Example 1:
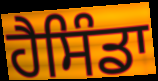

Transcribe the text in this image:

ਹੈਸਿੰਡਾ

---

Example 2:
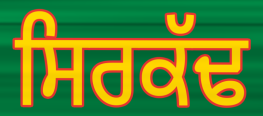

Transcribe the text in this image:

ਸਿਰਕੱਢ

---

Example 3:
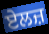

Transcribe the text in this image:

ਏਲਜ਼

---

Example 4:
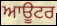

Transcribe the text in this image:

ਆਊਟਰ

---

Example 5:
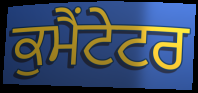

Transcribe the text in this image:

ਕੁਮੈਂਟੇਟਰ